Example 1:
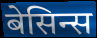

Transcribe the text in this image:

बेसिन्स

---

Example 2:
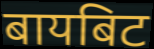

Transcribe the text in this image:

बायबिट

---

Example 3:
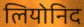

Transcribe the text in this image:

लियोनिद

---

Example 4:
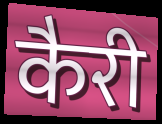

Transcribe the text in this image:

कैरी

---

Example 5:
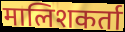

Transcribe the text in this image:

मालिशकर्ता